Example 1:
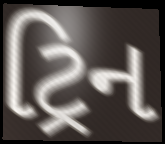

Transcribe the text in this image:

ટ્રિન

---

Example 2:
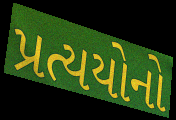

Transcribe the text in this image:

પ્રત્યયોનો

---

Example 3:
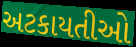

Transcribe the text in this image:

અટકાયતીઓ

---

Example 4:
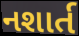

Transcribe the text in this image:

નશાર્ત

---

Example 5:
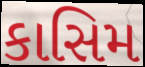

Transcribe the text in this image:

કાસિમ